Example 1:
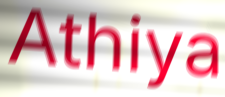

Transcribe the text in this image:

Athiya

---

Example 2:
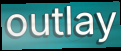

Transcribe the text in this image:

outlay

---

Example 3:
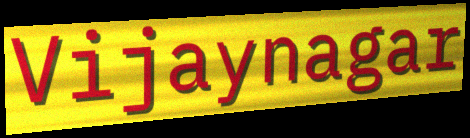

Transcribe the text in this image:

Vijaynagar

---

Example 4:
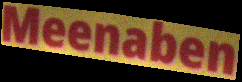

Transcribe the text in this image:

Meenaben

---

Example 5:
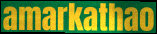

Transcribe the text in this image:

amarkathao